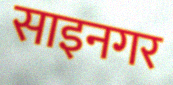
साइनगर